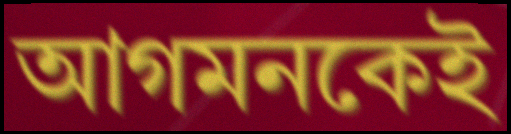
আগমনকেই